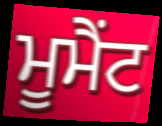
ਮੂਮੈਂਟ